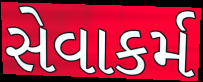
સેવાકર્મ